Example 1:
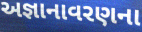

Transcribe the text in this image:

અજ્ઞાનાવરણના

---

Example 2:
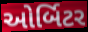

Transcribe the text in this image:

ઓર્બિટર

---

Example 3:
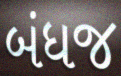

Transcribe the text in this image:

બંધજ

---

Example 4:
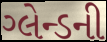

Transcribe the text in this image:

ગ્લેન્ડની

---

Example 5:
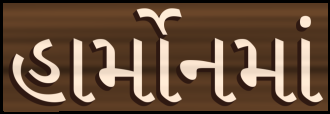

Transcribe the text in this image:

હાર્મોનમાં